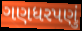
ગણધરપણું